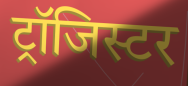
ट्रॉजिस्टर